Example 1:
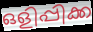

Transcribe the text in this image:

ഒളിപ്പിക്ക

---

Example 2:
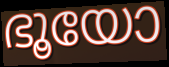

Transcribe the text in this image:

ഭൂയോ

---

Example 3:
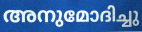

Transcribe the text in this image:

അനുമോദിച്ചു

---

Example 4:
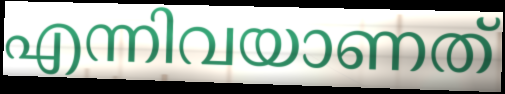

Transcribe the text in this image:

എന്നിവയാണത്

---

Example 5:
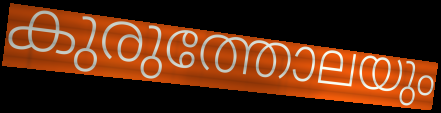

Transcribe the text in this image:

കുരുത്തോലയും